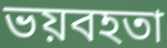
ভয়বহতা